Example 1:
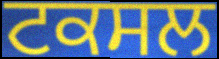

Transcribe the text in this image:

ਟਕਸਲ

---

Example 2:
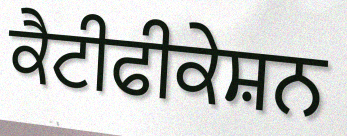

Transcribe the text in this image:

ਕੈਟੀਫੀਕੇਸ਼ਨ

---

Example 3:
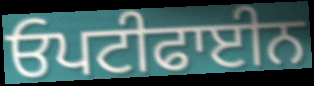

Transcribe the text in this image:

ਓਪਟੀਫਾਈਨ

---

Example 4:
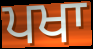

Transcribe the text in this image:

ਪਖਾ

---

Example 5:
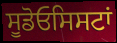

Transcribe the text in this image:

ਸੂਡੋਓਸਿਸਟਾਂ